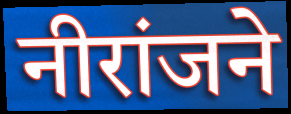
नीरांजने